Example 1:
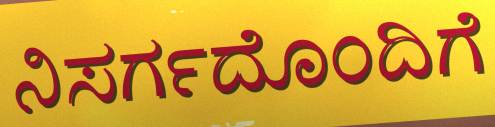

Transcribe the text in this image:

ನಿಸರ್ಗದೊಂದಿಗೆ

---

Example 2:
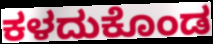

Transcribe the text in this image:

ಕಳದುಕೊಂಡ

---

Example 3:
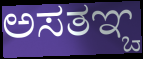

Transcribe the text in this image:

ಅಸತಞ್ಚ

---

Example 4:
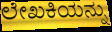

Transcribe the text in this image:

ಲೇಖಕಿಯನ್ನು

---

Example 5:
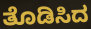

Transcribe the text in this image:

ತೊಡಿಸಿದ